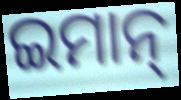
ଇମାନ୍